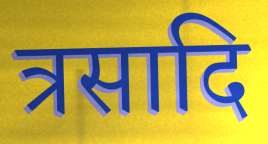
त्रसादि